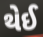
થેઈ